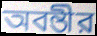
অবন্তীর